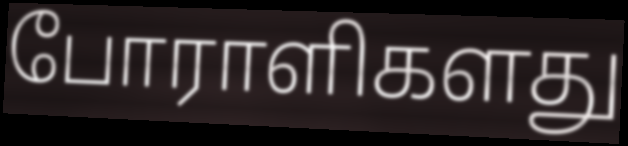
போராளிகளது